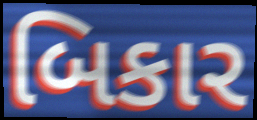
બિકાર